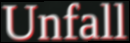
Unfall